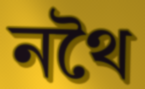
নথৈ